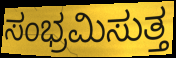
ಸಂಭ್ರಮಿಸುತ್ತ